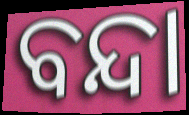
ବନ୍ଦା